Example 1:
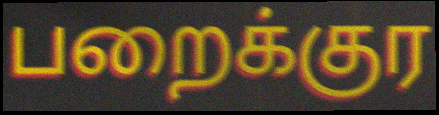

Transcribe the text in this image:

பறைக்குர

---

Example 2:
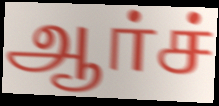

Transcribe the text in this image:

ஆர்ச்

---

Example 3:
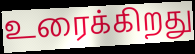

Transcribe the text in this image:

உரைக்கிறது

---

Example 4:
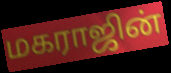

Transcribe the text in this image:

மகராஜின்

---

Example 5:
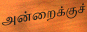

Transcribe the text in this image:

அன்றைக்குச்